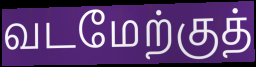
வடமேற்குத்